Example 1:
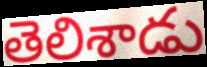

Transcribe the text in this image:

తెలిశాడు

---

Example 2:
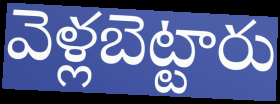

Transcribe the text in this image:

వెళ్లబెట్టారు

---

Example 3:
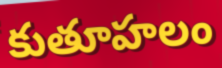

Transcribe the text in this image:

కుతూహలం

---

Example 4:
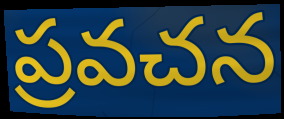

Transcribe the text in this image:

ప్రవచన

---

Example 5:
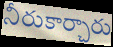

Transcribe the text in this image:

నీరుకార్చారు